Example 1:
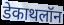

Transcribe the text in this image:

डेकाथलॉन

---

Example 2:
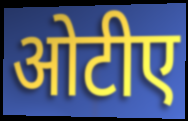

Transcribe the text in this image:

ओटीए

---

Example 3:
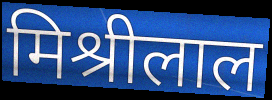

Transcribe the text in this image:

मिश्रीलाल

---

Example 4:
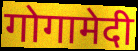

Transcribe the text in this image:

गोगामेदी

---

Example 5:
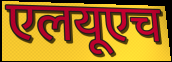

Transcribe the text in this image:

एलयूएच